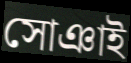
সোঞাই